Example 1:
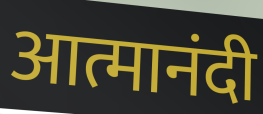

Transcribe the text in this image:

आत्मानंदी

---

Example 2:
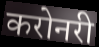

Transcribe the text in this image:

करोनरी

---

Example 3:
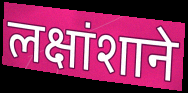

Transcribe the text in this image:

लक्षांशाने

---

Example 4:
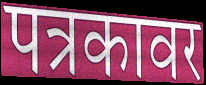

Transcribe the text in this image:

पत्रकावर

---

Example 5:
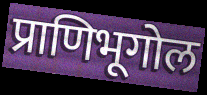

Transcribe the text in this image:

प्राणिभूगोल